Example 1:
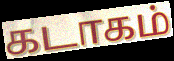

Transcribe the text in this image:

கடாகம்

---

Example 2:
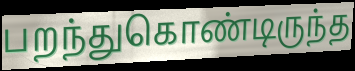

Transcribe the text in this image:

பறந்துகொண்டிருந்த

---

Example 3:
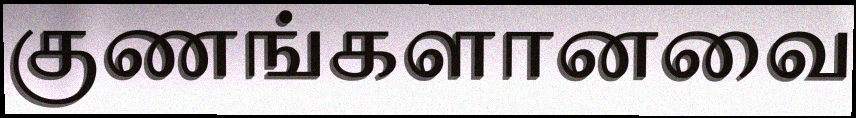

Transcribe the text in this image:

குணங்களானவை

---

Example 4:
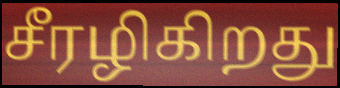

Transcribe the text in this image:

சீரழிகிறது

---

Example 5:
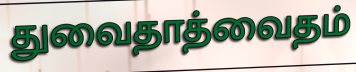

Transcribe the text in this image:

துவைதாத்வைதம்